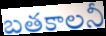
బతకాలనీ